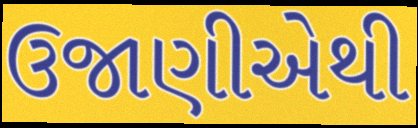
ઉજાણીએથી